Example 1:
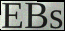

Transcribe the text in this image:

EBs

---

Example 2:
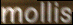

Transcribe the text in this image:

mollis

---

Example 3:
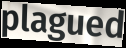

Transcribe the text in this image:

plagued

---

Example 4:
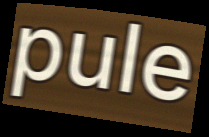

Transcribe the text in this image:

pule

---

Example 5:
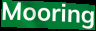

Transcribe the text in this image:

Mooring